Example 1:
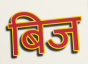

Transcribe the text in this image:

बिज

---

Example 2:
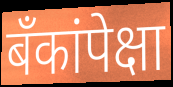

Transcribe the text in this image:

बँकांपेक्षा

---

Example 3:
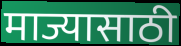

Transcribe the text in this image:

माज्यासाठी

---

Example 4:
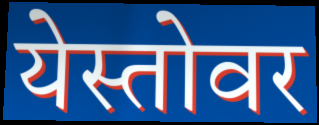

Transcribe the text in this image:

येस्तोवर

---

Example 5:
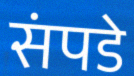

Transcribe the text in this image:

संपडे